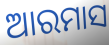
ଆରମାସ